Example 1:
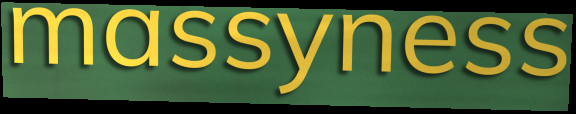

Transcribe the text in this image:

massyness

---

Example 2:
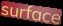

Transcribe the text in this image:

surface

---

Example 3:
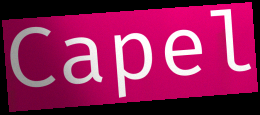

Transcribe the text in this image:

Capel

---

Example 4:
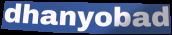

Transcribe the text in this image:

dhanyobad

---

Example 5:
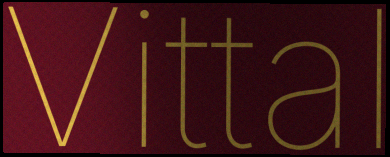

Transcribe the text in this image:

Vittal